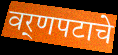
वर्णपटाचे